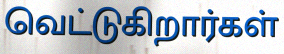
வெட்டுகிறார்கள்